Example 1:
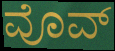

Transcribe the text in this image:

ವೊವ್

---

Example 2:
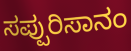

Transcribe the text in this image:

ಸಪ್ಪುರಿಸಾನಂ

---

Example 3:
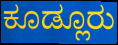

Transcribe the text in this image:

ಕೂಡ್ಲೂರು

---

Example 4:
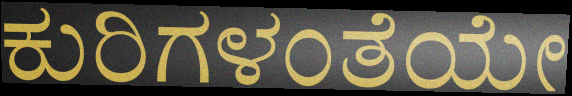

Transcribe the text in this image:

ಕುರಿಗಳಂತೆಯೇ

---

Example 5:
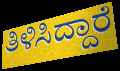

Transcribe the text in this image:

ತಿಳಿಸಿದ್ದಾರೆ